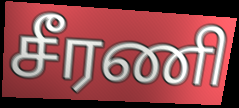
சீரணி